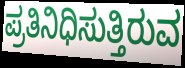
ಪ್ರತಿನಿಧಿಸುತ್ತಿರುವ